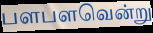
பளபளவென்று